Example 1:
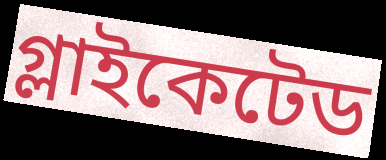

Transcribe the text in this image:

গ্লাইকেটেড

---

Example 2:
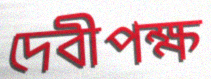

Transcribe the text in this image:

দেবীপক্ষ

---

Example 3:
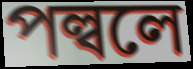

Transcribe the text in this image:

পল্বলে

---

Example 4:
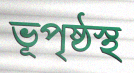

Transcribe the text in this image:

ভূপৃষ্ঠস্থ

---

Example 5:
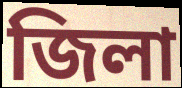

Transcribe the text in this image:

জিলা